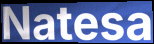
Natesa